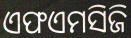
ଏଫଏମସିଜି